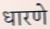
धारणे